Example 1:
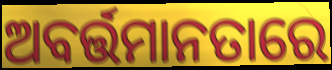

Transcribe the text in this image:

ଅବର୍ତ୍ତମାନତାରେ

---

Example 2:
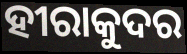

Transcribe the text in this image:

ହୀରାକୁଦର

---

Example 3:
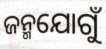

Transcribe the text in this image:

ଜନ୍ମଯୋଗୁଁ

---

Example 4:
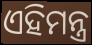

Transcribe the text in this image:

ଏହିମନ୍ତ୍ର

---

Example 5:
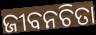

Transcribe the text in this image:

ଜୀବନଚିତା